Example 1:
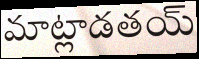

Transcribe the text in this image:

మాట్లాడతయ్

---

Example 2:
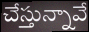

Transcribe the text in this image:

చేస్తున్నావే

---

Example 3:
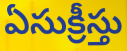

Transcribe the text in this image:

ఏసుక్రీస్తు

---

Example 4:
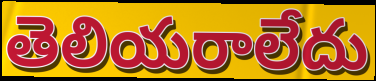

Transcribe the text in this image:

తెలియరాలేదు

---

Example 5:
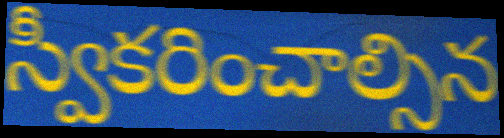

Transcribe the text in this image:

స్వీకరించాల్సిన